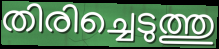
തിരിച്ചെടുത്തു